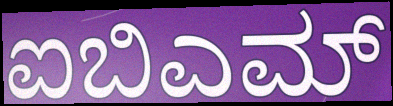
ಐಬಿಎಮ್